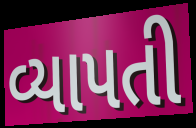
વ્યાપતી